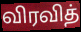
விரவித்